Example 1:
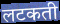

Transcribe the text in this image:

लटकती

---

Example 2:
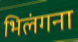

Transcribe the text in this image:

भिलंगना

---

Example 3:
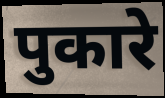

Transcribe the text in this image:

पुकारे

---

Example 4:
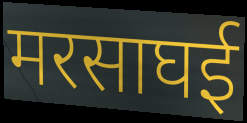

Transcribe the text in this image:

मरसाघई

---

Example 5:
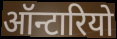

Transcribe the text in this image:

ऑन्टारियो